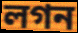
লগন